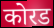
कोरड